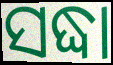
ସଦ୍ଧା